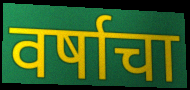
वर्षाचा